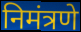
निमंत्रणे